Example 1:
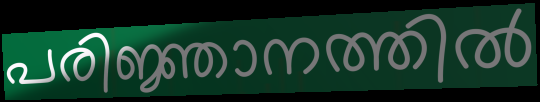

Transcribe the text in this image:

പരിജ്ഞാനത്തിൽ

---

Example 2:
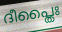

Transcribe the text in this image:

ദീപ്തൈഃ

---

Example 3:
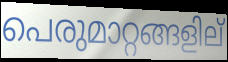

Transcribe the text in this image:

പെരുമാറ്റങ്ങളില്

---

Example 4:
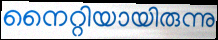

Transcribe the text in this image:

നൈറ്റിയായിരുന്നു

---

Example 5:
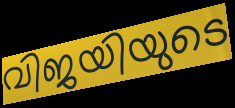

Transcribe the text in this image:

വിജയിയുടെ